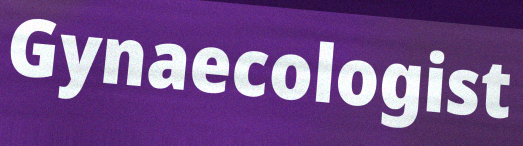
Gynaecologist